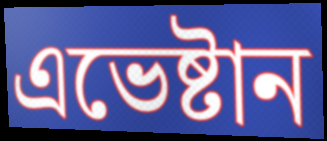
এভেষ্টান